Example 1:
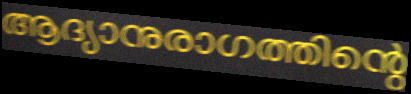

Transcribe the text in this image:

ആദ്യാനുരാഗത്തിന്റെ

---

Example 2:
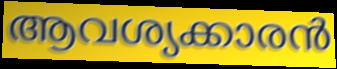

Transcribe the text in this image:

ആവശ്യക്കാരൻ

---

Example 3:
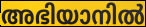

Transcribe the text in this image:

അഭിയാനിൽ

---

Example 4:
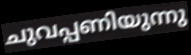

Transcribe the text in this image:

ചുവപ്പണിയുന്നു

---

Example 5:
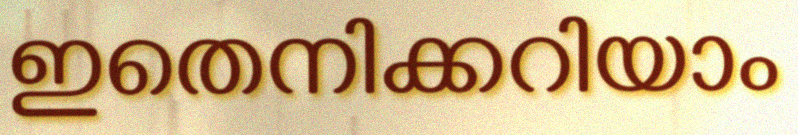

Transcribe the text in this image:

ഇതെനിക്കറിയാം